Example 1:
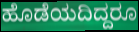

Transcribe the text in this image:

ಹೊಡೆಯದಿದ್ದರೂ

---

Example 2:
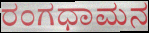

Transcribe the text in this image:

ರಂಗಧಾಮನ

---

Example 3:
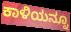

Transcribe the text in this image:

ಕಾಳಿಯನ್ನೂ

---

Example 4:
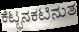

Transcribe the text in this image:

ಕೆಟ್ಟನಕಟೆನುತ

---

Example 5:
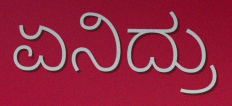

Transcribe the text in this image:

ಏನಿದ್ರು